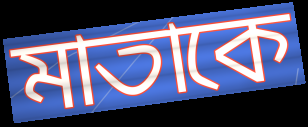
মাতাকে